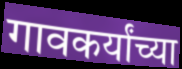
गावकर्यांच्या